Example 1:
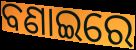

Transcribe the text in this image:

ବଣାଇରେ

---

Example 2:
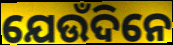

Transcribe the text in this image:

ଯେଉଁଦିନେ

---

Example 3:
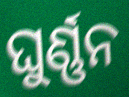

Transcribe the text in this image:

ଘୁର୍ଣ୍ଣନ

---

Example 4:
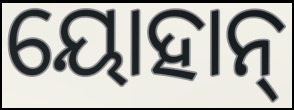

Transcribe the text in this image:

ୟୋହାନ୍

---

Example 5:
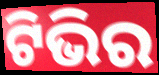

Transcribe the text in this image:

ଟିଭିର